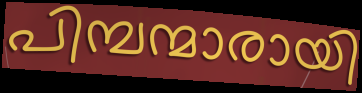
പിമ്പന്മാരായി